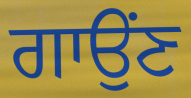
ਗਾਉਂਣ